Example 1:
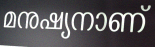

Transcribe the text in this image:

മനുഷ്യനാണ്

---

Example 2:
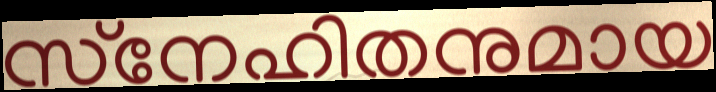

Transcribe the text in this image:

സ്‌നേഹിതനുമായ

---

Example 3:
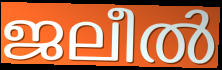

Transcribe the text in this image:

ജലീൽ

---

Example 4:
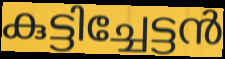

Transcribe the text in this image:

കുട്ടിച്ചേട്ടൻ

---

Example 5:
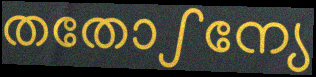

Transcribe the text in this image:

തതോഽന്യേ